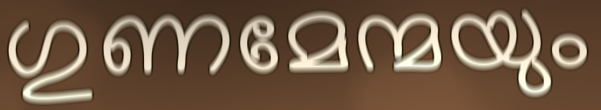
ഗുണമേന്മയും